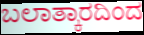
ಬಲಾತ್ಕಾರದಿಂದ